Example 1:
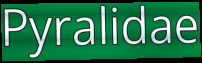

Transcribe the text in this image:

Pyralidae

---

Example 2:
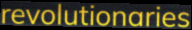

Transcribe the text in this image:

revolutionaries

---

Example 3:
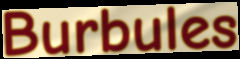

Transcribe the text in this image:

Burbules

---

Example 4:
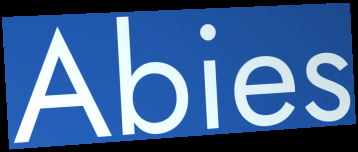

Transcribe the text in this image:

Abies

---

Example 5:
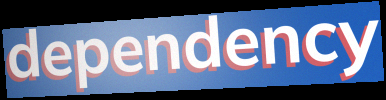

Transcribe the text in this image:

dependency